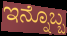
ಇನ್ನೊಬ್ಬ